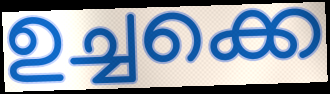
ഉച്ചക്കെ